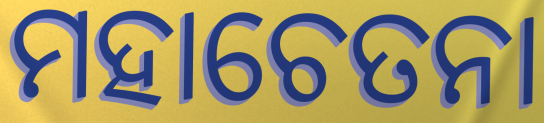
ମହାଚେତନା